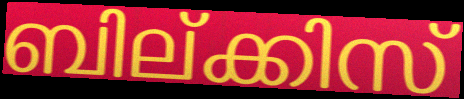
ബില്ക്കിസ്